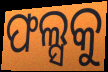
ଫଲ୍ସକୁ